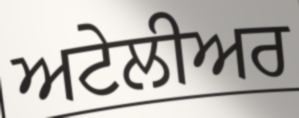
ਅਟੇਲੀਅਰ